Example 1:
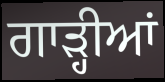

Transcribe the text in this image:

ਗਾੜ੍ਹੀਆਂ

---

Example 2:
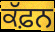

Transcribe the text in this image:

ਕੱਫ਼ਨ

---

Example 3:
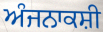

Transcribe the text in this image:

ਅੰਜਨਾਕਸ਼ੀ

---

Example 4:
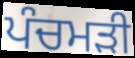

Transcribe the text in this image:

ਪੰਚਮੜੀ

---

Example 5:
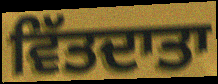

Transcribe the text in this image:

ਵਿੱਤਦਾਤਾ